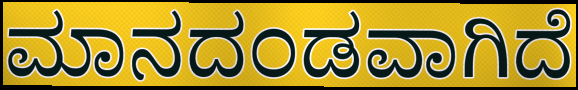
ಮಾನದಂಡವಾಗಿದೆ